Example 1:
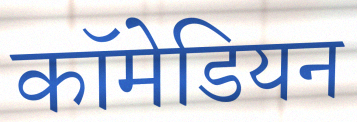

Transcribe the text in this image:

कॉमेडियन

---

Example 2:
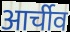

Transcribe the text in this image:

आर्चीव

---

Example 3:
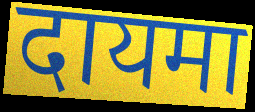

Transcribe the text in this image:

दायमा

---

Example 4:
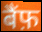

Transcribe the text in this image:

बैंफ़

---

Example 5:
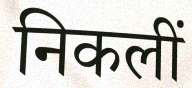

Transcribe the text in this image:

निकलीं